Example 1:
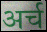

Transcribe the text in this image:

अर्च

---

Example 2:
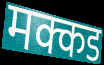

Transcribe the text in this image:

मक्कड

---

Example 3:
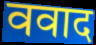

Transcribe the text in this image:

ववाद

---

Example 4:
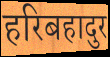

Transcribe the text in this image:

हरिबहादुर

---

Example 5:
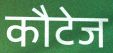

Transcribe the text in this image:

कौटेज